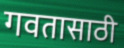
गवतासाठी